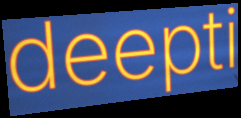
deepti